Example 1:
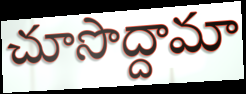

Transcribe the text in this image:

చూసొద్దామా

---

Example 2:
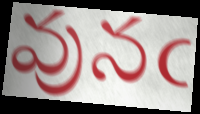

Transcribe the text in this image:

వునఁ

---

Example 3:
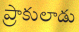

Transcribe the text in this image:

ప్రాకులాడు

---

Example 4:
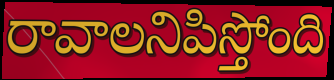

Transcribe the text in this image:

రావాలనిపిస్తోంది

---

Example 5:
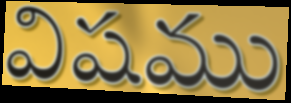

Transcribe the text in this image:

విషము